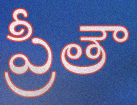
ప్రీతౌ